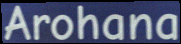
Arohana